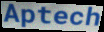
Aptech